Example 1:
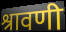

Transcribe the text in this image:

श्रावणी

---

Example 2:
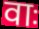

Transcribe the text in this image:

वाः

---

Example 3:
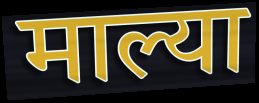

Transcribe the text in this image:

माल्या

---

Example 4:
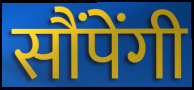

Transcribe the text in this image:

सौंपेंगी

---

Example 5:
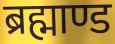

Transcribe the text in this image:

ब्रह्माण्ड